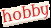
hobby